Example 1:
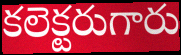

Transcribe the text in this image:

కలెక్టరుగారు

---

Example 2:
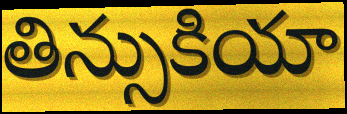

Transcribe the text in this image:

తిన్సుకియా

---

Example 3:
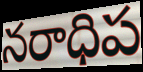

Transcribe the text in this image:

నరాధిప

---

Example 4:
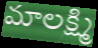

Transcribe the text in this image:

మాలక్ష్మి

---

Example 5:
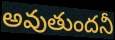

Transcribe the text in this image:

అవుతుందనీ